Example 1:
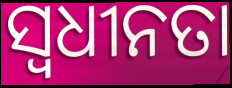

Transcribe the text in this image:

ସ୍ୱଧୀନତା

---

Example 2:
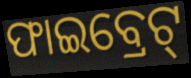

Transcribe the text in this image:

ଫାଇବ୍ରେଟ୍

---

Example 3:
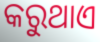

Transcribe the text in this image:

କରୁଥାଏ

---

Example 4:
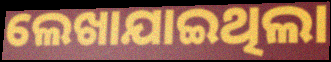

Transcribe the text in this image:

ଲେଖାଯାଇଥିଲା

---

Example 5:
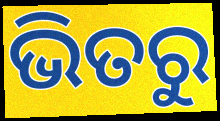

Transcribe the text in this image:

ଭିତରୁ